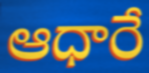
ఆధారే